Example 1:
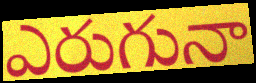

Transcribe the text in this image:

ఎరుగునా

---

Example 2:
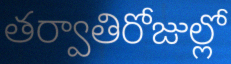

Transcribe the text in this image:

తర్వాతిరోజుల్లో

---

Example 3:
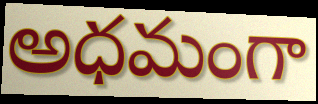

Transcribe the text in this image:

అధమంగా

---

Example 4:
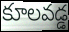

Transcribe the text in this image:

కూలవడ్డ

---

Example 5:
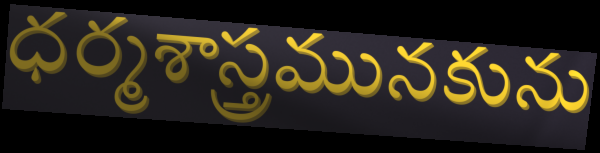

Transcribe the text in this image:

ధర్మశాస్త్రమునకును